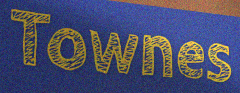
Townes